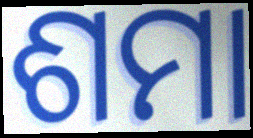
ଶମା